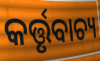
କର୍ତ୍ତୃବାଚ୍ୟ